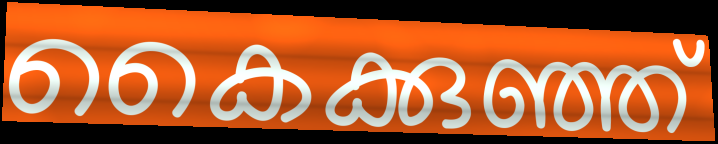
കൈക്കുഞ്ഞ്